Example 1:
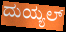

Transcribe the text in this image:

ದುಯ್ಯಲ್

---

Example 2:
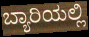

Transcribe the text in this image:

ಬ್ಯಾರಿಯಲ್ಲಿ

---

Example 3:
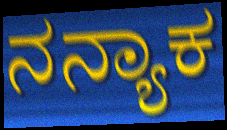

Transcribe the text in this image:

ನನ್ಯಾಕ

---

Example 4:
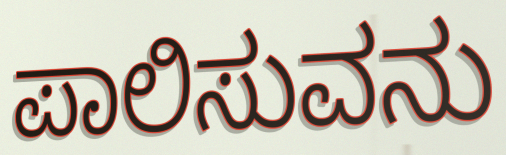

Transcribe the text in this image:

ಪಾಲಿಸುವನು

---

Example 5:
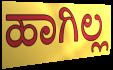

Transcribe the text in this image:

ಹಾಗಿಲ್ಲ